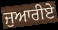
ਜੁਆਰੀਏ